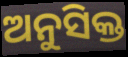
ଅନୁସିକ୍ତ